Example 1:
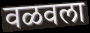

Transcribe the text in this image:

वळवला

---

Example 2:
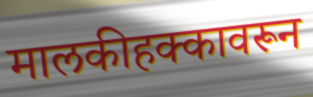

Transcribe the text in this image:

मालकीहक्कावरून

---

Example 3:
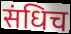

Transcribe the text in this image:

संधिच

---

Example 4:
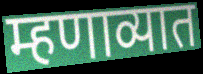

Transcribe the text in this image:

म्हणाव्यात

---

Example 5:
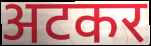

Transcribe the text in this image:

अटकर